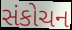
સંકોચન